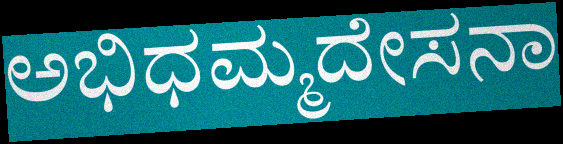
ಅಭಿಧಮ್ಮದೇಸನಾ